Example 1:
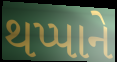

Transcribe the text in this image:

થપ્પાને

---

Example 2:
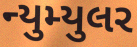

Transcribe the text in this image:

ન્યુમ્યુલર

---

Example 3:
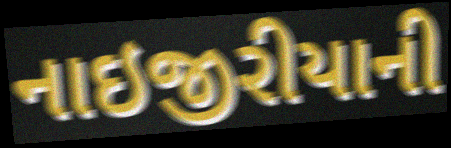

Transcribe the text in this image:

નાઇજીરીયાની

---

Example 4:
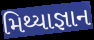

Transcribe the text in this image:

મિથ્યાજ્ઞાન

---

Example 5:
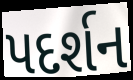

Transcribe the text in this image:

પદર્શન